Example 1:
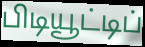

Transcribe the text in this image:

பிடியூட்டிப்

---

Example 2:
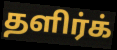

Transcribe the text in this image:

தளிர்க்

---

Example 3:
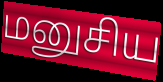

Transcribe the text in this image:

மனுசிய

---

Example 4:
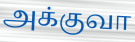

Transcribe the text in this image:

அக்குவா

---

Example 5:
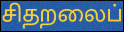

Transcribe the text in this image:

சிதறலைப்